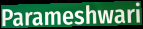
Parameshwari